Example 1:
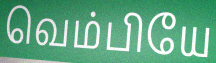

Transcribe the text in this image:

வெம்பியே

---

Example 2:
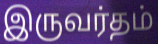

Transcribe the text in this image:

இருவர்தம்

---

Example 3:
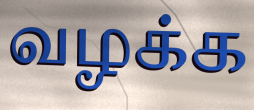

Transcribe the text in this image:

வழக்க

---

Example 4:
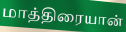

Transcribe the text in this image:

மாத்திரையான்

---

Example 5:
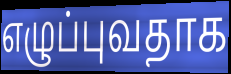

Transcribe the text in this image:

எழுப்புவதாக